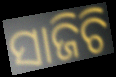
ସାଜିଚି